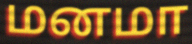
மனமா